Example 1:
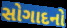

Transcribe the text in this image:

સોગાદનો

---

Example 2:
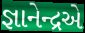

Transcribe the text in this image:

જ્ઞાનેન્દ્રએ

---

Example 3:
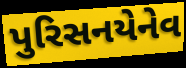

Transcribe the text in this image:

પુરિસનયેનેવ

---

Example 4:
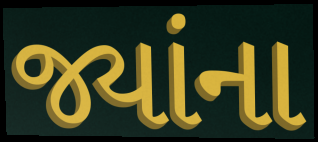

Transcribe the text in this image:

જ્યાંના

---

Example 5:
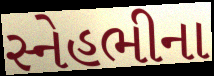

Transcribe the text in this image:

સ્નેહભીના